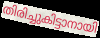
തിരിച്ചുകിട്ടാനായി